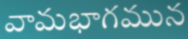
వామభాగమున